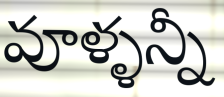
వూళ్ళన్నీ